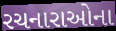
રચનારાઓના